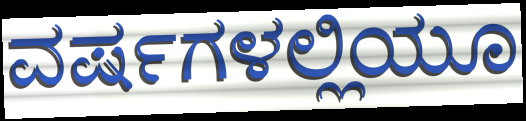
ವರ್ಷಗಳಲ್ಲಿಯೂ